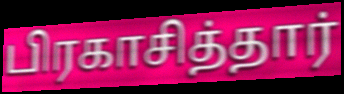
பிரகாசித்தார்